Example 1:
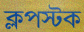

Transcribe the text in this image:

ক্লপস্টক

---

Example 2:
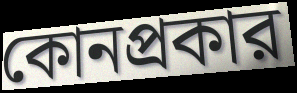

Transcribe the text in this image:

কোনপ্রকার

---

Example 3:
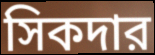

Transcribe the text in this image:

সিকদার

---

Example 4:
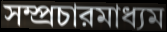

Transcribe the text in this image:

সম্প্রচারমাধ্যম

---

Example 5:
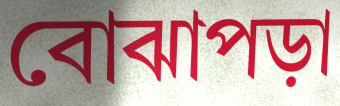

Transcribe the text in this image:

বোঝাপড়া